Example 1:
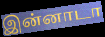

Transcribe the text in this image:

இன்னாடா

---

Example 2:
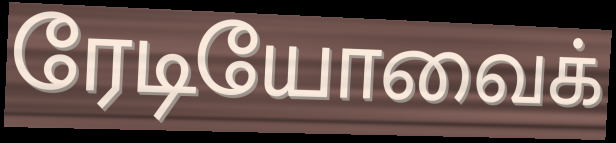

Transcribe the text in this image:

ரேடியோவைக்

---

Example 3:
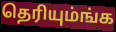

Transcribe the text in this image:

தெரியும்ங்க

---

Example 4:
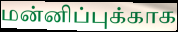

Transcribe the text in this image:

மன்னிப்புக்காக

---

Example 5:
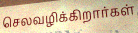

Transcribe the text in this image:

செலவழிக்கிறார்கள்